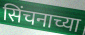
सिंचनाच्या